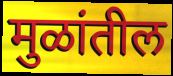
मुळांतील